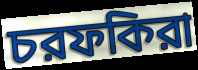
চরফকিরা